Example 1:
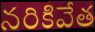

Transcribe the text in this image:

నరికివేత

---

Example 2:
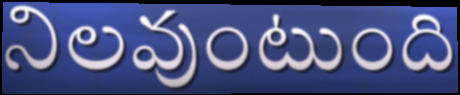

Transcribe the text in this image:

నిలవుంటుంది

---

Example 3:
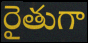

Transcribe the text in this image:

రైతుగా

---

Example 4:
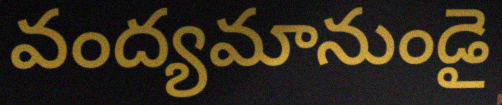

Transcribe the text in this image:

వంద్యమానుండై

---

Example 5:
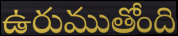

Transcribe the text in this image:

ఉరుముతోంది